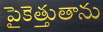
పైకెత్తుతాను